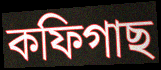
কফিগাছ